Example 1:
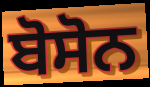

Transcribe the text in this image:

ਬੋਸੋਨ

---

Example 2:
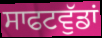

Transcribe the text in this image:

ਸਾਫਟਵੁੱਡਾਂ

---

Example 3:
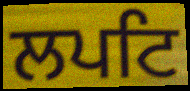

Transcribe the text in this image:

ਲਪਟਿ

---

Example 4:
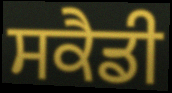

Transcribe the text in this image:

ਸਕੈਡੀ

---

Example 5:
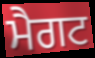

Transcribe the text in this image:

ਮੈਗਟ